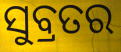
ସୁବ୍ରତର